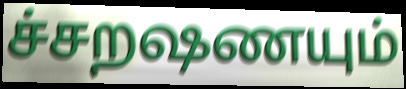
ச்சறஷணயும்